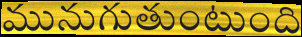
మునుగుతుంటుంది